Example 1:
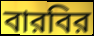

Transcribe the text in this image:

বারবির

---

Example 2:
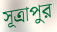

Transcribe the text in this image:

সূত্রাপুর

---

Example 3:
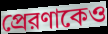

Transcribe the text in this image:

প্রেরণাকেও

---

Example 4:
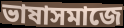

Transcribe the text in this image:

ভাষাসমাজে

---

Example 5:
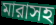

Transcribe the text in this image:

মারাসহ